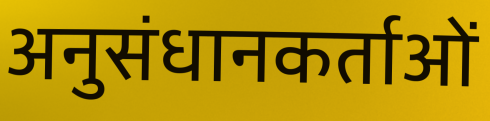
अनुसंधानकर्ताओं